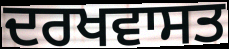
ਦਰਖਵਾਸਤ